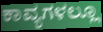
ಕಾವ್ಯಗಳಲ್ಲೂ